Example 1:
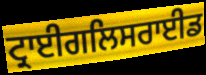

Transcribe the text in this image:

ਟ੍ਰਾਈਗਲਿਸਰਾਈਡ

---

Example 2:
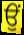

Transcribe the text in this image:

ਉਂ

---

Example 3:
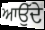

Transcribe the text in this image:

ਆਉੱਦੇ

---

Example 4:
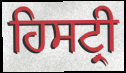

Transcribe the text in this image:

ਹਿਸਟ੍ਰੀ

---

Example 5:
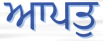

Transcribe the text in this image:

ਆਪਤੁ